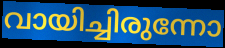
വായിച്ചിരുന്നോ